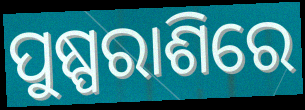
ପୁଷ୍ପରାଶିରେ